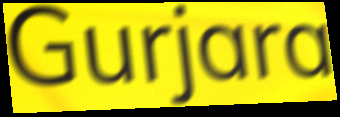
Gurjara